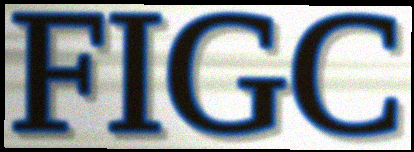
FIGC